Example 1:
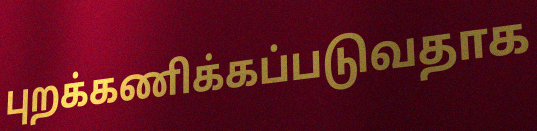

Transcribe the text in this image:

புறக்கணிக்கப்படுவதாக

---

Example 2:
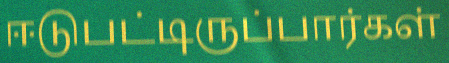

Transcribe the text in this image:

ஈடுபட்டிருப்பார்கள்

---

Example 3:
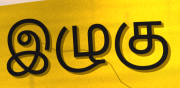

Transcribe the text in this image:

இழுகு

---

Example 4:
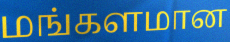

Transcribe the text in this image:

மங்களமான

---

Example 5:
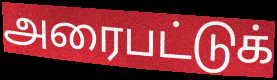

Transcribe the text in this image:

அரைபட்டுக்